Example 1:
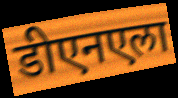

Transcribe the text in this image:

डीएनएला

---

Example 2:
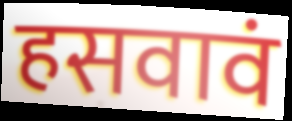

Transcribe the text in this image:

हसवावं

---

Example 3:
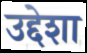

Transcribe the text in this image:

उद्देशा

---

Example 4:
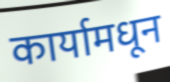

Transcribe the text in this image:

कार्यामधून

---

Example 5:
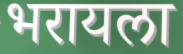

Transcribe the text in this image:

भरायला